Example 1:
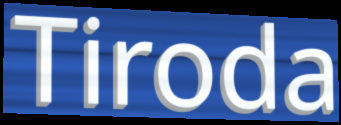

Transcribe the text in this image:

Tiroda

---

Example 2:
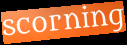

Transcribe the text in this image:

scorning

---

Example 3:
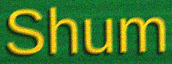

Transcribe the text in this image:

Shum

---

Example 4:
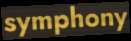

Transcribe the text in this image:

symphony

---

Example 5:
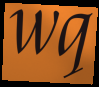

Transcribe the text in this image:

wq